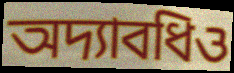
অদ্যাবধিও